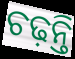
ଚଢ଼ନ୍ତି